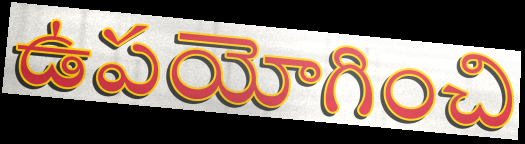
ఉపయోగించి